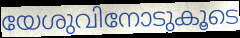
യേശുവിനോടുകൂടെ